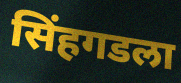
सिंहगडला